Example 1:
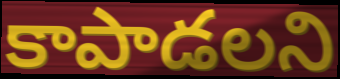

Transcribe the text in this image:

కాపాడలని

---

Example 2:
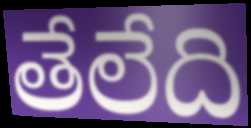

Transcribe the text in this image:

తేలేది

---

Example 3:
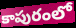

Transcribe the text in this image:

కాపురంలో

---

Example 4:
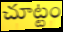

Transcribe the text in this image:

చూట్టం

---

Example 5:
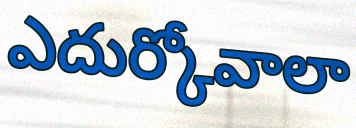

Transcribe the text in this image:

ఎదుర్కోవాలా